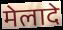
मेलादे